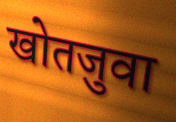
खोतजुवा